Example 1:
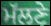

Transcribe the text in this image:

ਮੱਲਣੇ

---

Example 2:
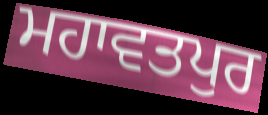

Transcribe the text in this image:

ਮਹਾਵਤਪੁਰ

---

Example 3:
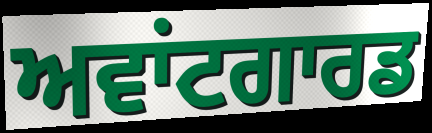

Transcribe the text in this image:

ਅਵਾਂਟਗਾਰਡ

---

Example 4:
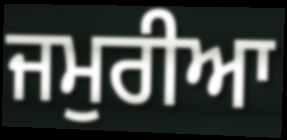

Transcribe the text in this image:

ਜਮੁਰੀਆ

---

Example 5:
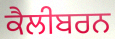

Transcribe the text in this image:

ਕੈਲੀਬਰਨ